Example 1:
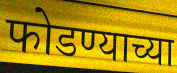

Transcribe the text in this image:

फोडण्याच्या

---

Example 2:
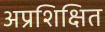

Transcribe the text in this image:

अप्रशिक्षित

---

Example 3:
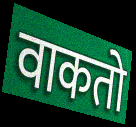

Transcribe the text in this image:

वाकतो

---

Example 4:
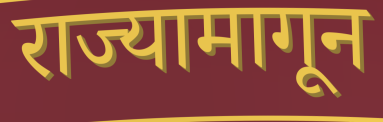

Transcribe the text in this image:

राज्यामागून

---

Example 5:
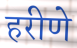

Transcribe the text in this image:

हरीणे